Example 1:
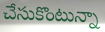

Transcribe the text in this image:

చేసుకొంటున్నా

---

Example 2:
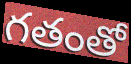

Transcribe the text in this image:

గతంతో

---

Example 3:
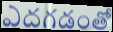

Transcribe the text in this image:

ఎదగడంతో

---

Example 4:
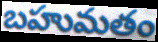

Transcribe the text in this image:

బహుమతం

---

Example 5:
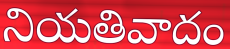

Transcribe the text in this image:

నియతివాదం